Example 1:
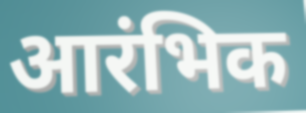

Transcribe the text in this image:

आरंभिक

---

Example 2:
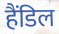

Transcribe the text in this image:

हैंडिल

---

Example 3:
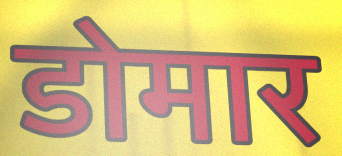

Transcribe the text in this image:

डोमार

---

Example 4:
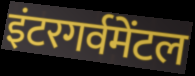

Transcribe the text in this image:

इंटरगर्वमेंटल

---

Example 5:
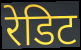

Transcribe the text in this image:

रेडिट